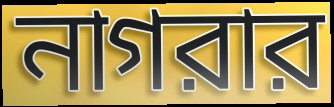
নাগরার